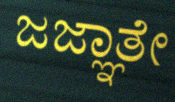
ಜಜ್ಞಾತೇ